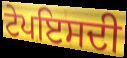
ਟੇਪਇਸਦੀ